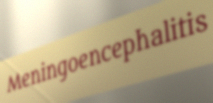
Meningoencephalitis